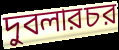
দুবলারচর